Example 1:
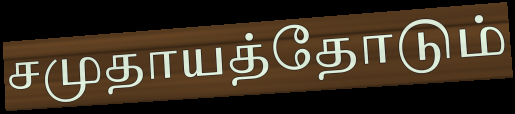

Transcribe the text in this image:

சமுதாயத்தோடும்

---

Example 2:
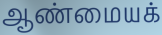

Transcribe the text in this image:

ஆண்மையக்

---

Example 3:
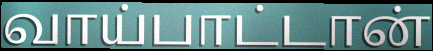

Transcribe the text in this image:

வாய்பாட்டான்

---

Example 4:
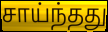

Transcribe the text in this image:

சாய்ந்தது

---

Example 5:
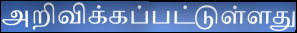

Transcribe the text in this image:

அறிவிக்கப்பட்டுள்ளது